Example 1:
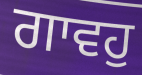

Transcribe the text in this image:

ਗਾਵਹੁ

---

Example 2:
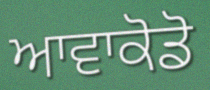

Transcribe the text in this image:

ਆਵਾਕੋਡੋ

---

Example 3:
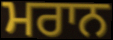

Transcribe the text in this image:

ਮਰਾਨ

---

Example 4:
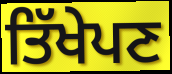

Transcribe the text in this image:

ਤਿੱਖੇਪਣ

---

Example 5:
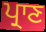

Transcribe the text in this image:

ਪ੍ਰਾਣ